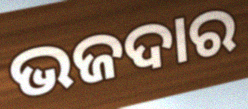
ଭଜଦାର